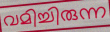
വമിച്ചിരുന്ന